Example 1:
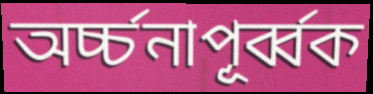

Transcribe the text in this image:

অর্চ্চনাপূর্ব্বক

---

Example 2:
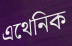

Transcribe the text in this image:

এথেনিক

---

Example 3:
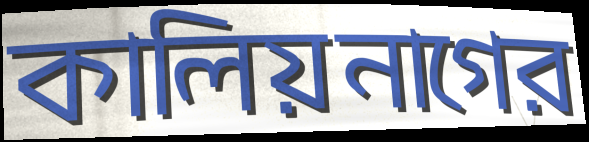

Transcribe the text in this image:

কালিয়নাগের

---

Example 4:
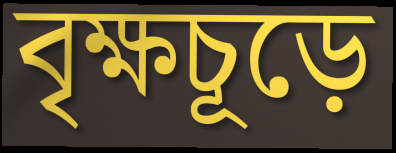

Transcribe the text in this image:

বৃক্ষচূড়ে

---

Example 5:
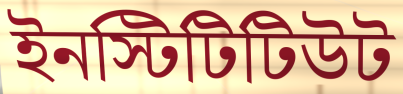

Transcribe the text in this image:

ইনস্টিটিটিউট